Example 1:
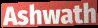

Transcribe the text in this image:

Ashwath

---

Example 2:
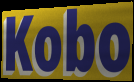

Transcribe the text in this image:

Kobo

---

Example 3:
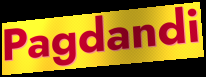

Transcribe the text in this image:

Pagdandi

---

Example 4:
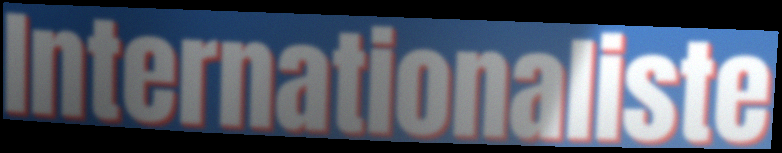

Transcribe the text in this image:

Internationaliste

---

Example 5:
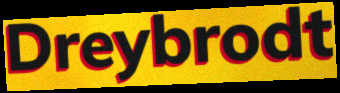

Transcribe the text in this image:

Dreybrodt